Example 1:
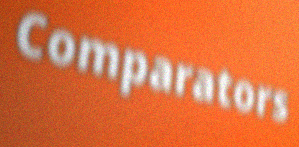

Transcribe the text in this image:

Comparators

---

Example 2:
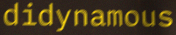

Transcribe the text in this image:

didynamous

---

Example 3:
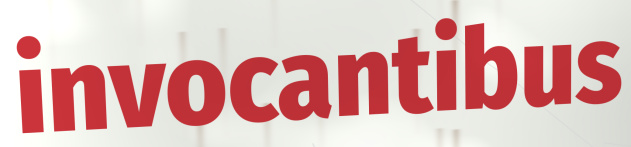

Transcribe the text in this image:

invocantibus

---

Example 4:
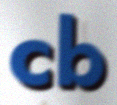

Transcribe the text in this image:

cb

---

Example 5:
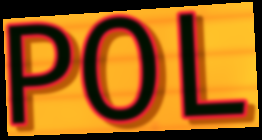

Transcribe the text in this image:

POL